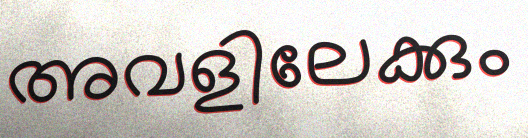
അവളിലേക്കും